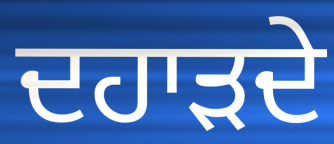
ਦਹਾੜਦੇ